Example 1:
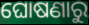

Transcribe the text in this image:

ଘୋଷଣାରୁ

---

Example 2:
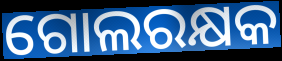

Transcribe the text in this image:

ଗୋଲରକ୍ଷକ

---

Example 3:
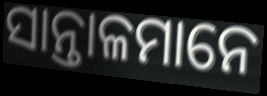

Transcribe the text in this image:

ସାନ୍ତାଳମାନେ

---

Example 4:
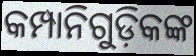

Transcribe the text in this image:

କମ୍ପାନିଗୁଡ଼ିକଙ୍କ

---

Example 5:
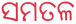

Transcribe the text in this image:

ସମତଳ